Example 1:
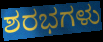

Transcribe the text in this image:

ಶರಭಗಳು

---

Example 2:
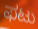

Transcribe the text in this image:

ಫಟು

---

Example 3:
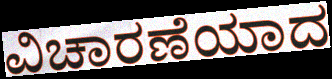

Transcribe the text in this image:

ವಿಚಾರಣೆಯಾದ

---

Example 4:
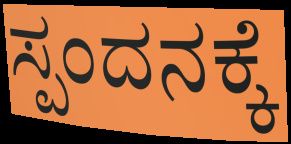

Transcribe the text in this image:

ಸ್ಪಂದನಕ್ಕೆ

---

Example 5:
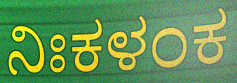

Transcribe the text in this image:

ನಿಃಕಳಂಕ